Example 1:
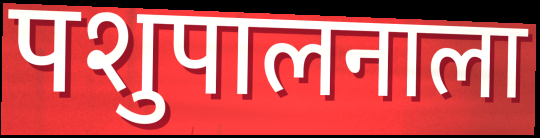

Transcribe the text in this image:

पशुपालनाला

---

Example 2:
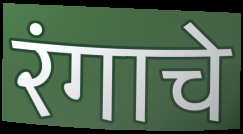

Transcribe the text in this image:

रंगाचे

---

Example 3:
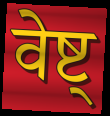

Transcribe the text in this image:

वेष्ट्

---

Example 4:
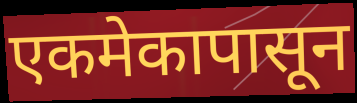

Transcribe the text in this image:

एकमेकापासून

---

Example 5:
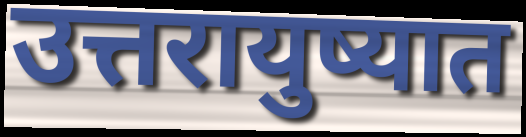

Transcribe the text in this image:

उत्तरायुष्यात